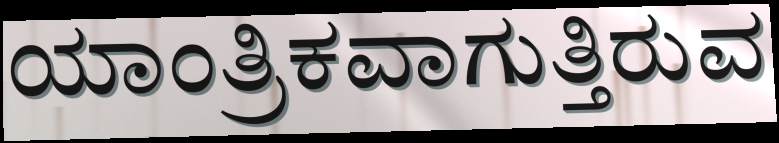
ಯಾಂತ್ರಿಕವಾಗುತ್ತಿರುವ